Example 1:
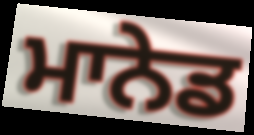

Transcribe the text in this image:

ਮਾਨੇਡ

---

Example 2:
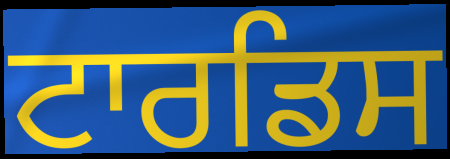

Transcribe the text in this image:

ਟਾਰਡਿਸ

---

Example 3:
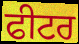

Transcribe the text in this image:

ਫੀਟਰ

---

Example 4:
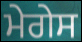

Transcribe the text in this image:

ਮੇਗੇਸ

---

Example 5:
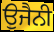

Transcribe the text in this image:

ਉਜੈਨੀ